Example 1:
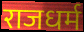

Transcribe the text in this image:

राजधर्म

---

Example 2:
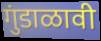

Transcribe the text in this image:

गुंडाळावी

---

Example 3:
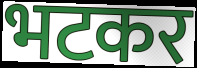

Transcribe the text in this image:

भटकर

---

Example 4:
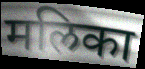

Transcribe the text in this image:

मलिका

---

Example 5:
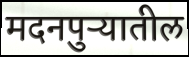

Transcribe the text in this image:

मदनपुऱ्यातील